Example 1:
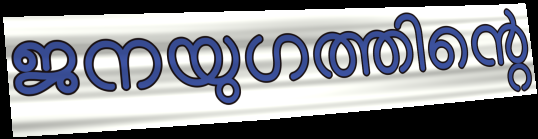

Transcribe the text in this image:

ജനയുഗത്തിന്റെ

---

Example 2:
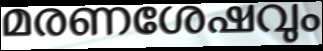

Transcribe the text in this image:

മരണശേഷവും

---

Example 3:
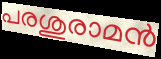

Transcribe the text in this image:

പരശുരാമൻ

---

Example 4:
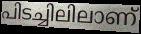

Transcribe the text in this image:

പിടച്ചിലിലാണ്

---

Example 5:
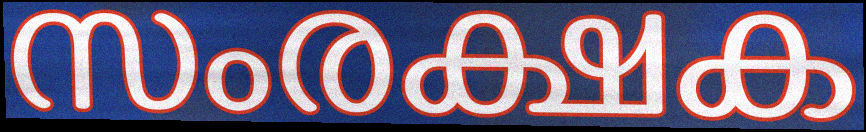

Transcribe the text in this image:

സംരക്ഷക